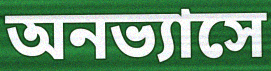
অনভ্যাসে